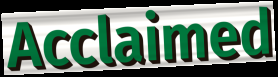
Acclaimed